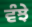
ਵੰਝੇ